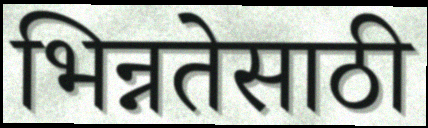
भिन्नतेसाठी